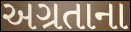
અગ્રતાના